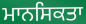
ਮਾਨਸਿਕਤਾ